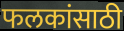
फलकांसाठी